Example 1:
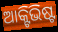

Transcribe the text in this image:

ଆକ୍ଟିଭିଷ୍ଟ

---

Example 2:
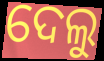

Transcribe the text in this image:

ଦେଲୁ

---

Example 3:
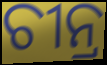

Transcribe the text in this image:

ଚୀନ୍ର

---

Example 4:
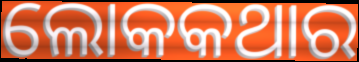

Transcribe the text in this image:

ଲୋକକଥାର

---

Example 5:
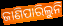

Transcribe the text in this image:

ଜାଣିପାରିଲୁନି